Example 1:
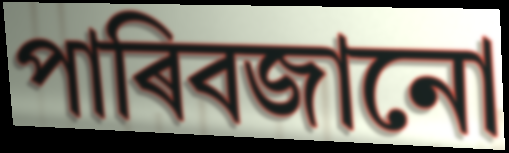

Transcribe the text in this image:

পাৰিবজানো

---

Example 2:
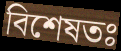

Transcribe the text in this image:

বিশেষতঃ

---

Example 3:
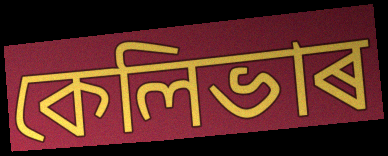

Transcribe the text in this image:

কেলিভাৰ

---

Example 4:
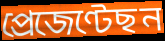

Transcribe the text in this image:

প্ৰেজেণ্টেছন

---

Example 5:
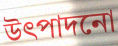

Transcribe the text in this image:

উৎপাদনো